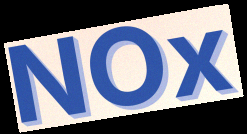
NOx